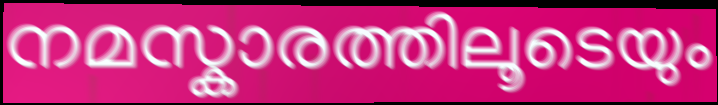
നമസ്കാരത്തിലൂടെയും